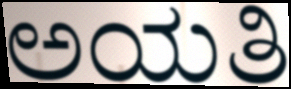
ಅಯತಿ